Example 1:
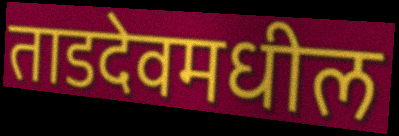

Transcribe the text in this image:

ताडदेवमधील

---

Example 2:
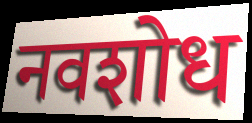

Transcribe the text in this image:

नवशोध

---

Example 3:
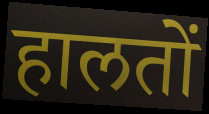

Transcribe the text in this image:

हालतों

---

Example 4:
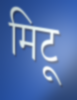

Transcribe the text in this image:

मिटू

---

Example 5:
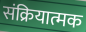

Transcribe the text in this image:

संक्रियात्मक